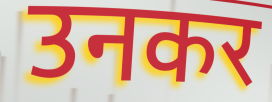
उनकर